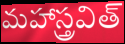
మహాస్త్రవిత్